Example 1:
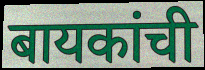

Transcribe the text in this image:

बायकांची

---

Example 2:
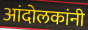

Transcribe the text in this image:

आंदोलकांनी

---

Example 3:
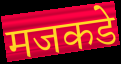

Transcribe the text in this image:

मजकडे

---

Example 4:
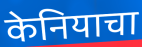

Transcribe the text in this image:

केनियाचा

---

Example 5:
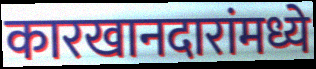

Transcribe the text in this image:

कारखानदारांमध्ये